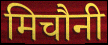
मिचौनी